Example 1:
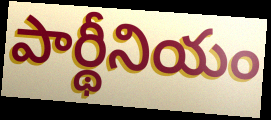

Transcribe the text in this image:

పార్థీనియం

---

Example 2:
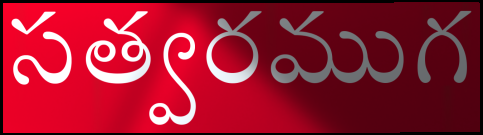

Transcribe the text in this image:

సత్వరముగ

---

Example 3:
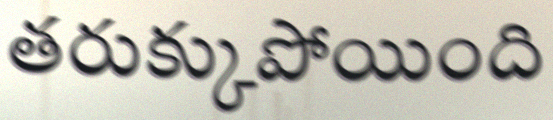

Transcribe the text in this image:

తరుక్కుపోయింది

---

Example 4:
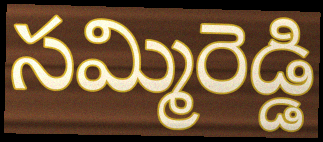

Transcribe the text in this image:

సమ్మిరెడ్డి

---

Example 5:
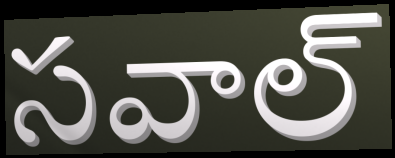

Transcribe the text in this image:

సవాల్